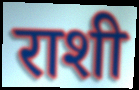
राशी